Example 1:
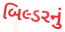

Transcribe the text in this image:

બિલ્ડરનું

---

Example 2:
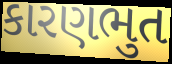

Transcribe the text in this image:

કારણભુત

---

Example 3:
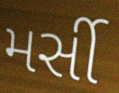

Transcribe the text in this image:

મર્સી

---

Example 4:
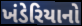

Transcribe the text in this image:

ખંડેરિયાનો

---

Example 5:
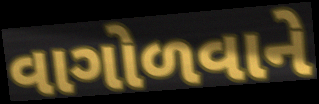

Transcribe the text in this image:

વાગોળવાને